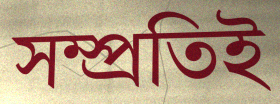
সম্প্রতিই